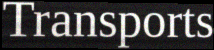
Transports